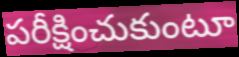
పరీక్షించుకుంటూ